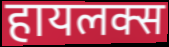
हायलक्स